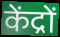
केंद्रों